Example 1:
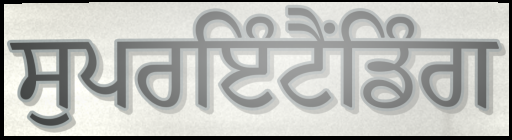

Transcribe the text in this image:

ਸੁਪਰਇੰਟੈਂਡਿੰਗ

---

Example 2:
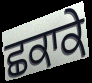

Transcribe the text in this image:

ਛਕਾਕੇ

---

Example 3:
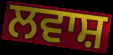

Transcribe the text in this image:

ਲਵਾਸ਼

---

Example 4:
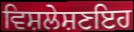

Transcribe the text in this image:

ਵਿਸ਼ਲੇਸ਼ਣਇਹ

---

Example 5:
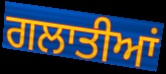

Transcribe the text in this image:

ਗਲਾਤੀਆਂ